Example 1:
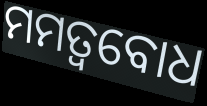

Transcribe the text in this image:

ମମତ୍ବବୋଧ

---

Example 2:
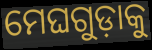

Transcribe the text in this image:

ମେଘଗୁଡ଼ାକୁ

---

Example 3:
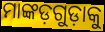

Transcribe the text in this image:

ମାଙ୍କଡ଼ଗୁଡ଼ାକୁ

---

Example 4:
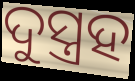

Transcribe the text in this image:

ଦୁସ୍ତ୍ରହ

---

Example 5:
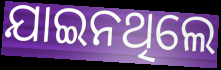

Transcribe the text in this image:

ଯାଇନଥିଲେ